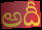
అదీ